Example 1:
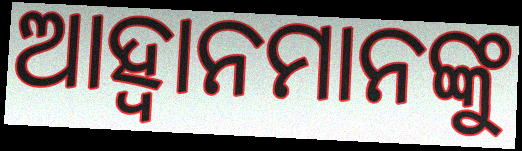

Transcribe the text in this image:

ଆହ୍ୱାନମାନଙ୍କୁ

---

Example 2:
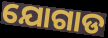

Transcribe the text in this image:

ଯୋଗାଡ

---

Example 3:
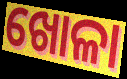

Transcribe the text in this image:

ଖୋଳା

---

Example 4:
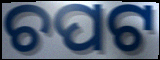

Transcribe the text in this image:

ଚପଟ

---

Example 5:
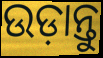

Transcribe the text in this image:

ଉଡ଼ାନ୍ତୁ